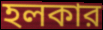
হলকার